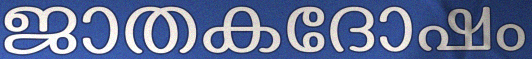
ജാതകദോഷം